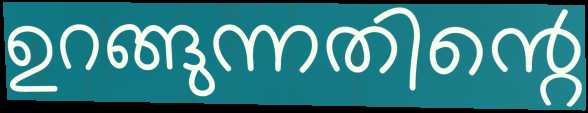
ഉറങ്ങുന്നതിന്റെ